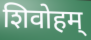
शिवोहम्